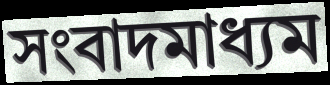
সংবাদমাধ্যম